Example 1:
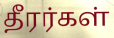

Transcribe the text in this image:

தீரர்கள்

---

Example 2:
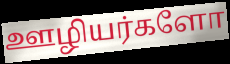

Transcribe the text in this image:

ஊழியர்களோ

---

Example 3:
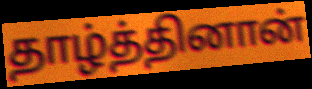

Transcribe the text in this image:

தாழ்த்தினான்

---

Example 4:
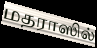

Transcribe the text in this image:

மதராஸில்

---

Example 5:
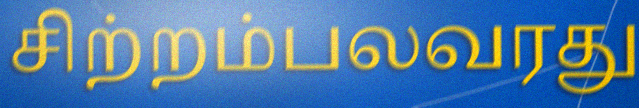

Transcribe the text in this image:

சிற்றம்பலவரது